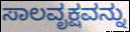
ಸಾಲವೃಕ್ಷವನ್ನು